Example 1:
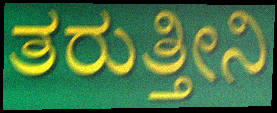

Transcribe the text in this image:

ತರುತ್ತೀನಿ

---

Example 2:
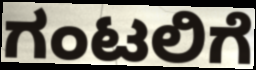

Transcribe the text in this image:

ಗಂಟಲಿಗೆ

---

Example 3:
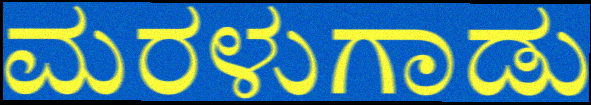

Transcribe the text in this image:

ಮರಳುಗಾಡು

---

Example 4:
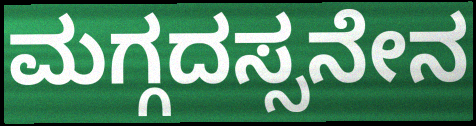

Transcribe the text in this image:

ಮಗ್ಗದಸ್ಸನೇನ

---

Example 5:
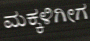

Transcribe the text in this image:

ಮಕ್ಕಳಿಗೀಗ